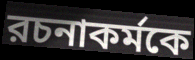
রচনাকর্মকে